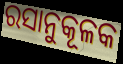
ରସାନୁକୂଳକ